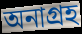
অনাগ্রহ